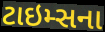
ટાઇમ્સના